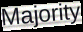
Majority